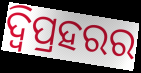
ଦ୍ବିପ୍ରହରର